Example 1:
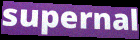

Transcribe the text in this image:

supernal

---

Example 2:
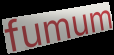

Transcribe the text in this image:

fumum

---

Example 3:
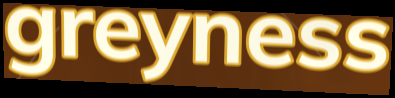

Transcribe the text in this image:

greyness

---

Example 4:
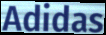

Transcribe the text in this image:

Adidas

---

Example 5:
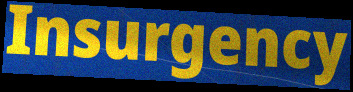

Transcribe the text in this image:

Insurgency